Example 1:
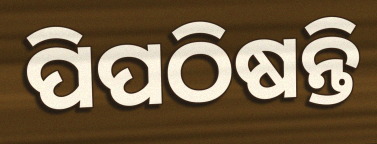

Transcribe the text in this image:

ପିପଠିଷନ୍ତି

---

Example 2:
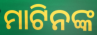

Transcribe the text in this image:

ମାଟିନଙ୍କ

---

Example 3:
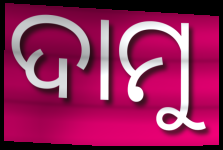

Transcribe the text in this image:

ଦାମୁ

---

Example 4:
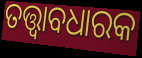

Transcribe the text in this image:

ତତ୍ତ୍ୱାବଧାରକ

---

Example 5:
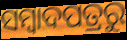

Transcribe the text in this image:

ସମ୍ବାଦପତ୍ରରୁ